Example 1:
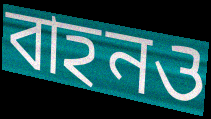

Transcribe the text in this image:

বাহনও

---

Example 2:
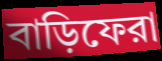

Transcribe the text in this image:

বাড়িফেরা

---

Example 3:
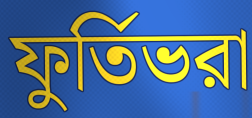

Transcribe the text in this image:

ফুর্তিভরা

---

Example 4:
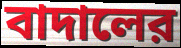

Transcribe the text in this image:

বাদালের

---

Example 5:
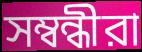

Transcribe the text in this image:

সম্বন্ধীরা